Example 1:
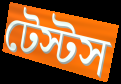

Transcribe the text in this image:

টেস্টস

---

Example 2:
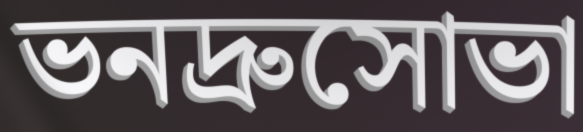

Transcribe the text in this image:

ভনদ্রুসোভা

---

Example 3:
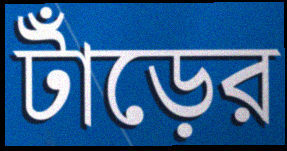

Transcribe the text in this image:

টাঁড়ের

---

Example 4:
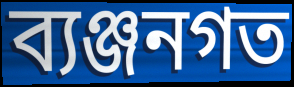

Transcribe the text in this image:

ব্যঞ্জনগত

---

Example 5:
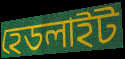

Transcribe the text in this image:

হেডলাইট